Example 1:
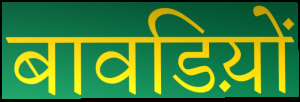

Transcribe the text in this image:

बावडिय़ों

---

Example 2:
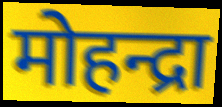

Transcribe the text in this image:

मोहन्द्रा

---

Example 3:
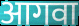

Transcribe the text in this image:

आगवा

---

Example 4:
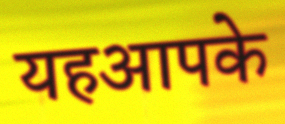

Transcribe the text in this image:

यहआपके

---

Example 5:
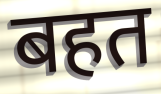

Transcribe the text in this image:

बहत